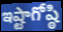
ఇష్టాగోష్ఠి